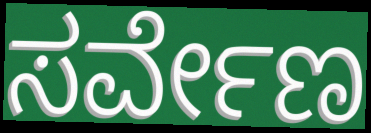
ಸರ್ವೇಣ